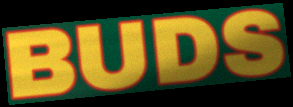
BUDS